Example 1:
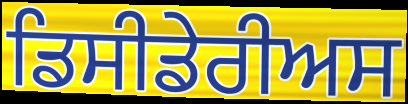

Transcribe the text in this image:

ਡਿਸੀਡੇਰੀਅਸ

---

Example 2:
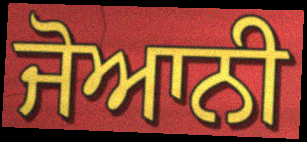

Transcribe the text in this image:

ਜੋਆਨੀ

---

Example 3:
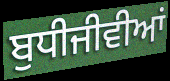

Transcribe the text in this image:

ਬੁਧੀਜੀਵੀਆਂ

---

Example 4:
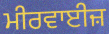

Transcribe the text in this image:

ਮੀਰਵਾਈਜ਼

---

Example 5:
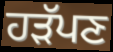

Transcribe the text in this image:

ਹੜੱਪਣ